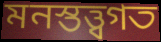
মনস্তত্ত্বগত